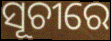
ସୂଚୀରେ